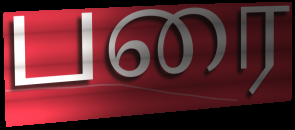
பரை